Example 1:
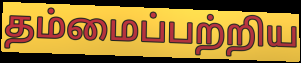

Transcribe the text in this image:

தம்மைப்பற்றிய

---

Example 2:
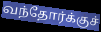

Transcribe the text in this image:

வந்தோர்க்குச்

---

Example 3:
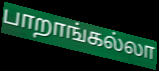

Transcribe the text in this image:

பாறாங்கல்லா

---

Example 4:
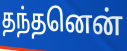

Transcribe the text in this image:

தந்தனென்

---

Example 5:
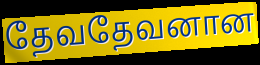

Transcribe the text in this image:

தேவதேவனான